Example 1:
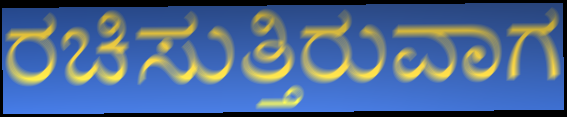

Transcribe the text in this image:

ರಚಿಸುತ್ತಿರುವಾಗ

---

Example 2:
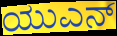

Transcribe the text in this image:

ಯುಎನ್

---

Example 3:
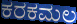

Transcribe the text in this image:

ಕರಕಮಲ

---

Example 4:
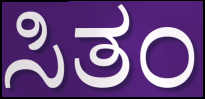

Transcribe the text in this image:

ಸಿತಂ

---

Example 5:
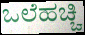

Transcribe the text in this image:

ಒಲೆಹಚ್ಚಿ